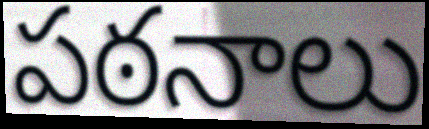
పఠనాలు